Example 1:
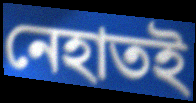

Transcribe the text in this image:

নেহাতই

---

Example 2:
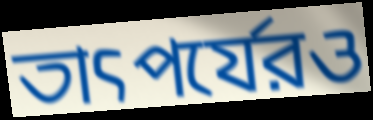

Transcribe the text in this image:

তাৎপর্যেরও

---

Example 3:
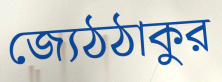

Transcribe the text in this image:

জ্যেঠঠাকুর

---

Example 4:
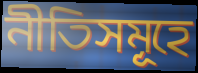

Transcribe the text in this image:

নীতিসমূহে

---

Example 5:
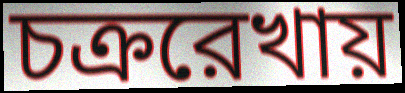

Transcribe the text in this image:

চক্ররেখায়